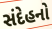
સંદેહનો